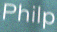
Philp